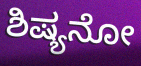
ಶಿಷ್ಯನೋ